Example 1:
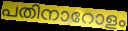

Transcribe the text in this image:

പതിനാറോളം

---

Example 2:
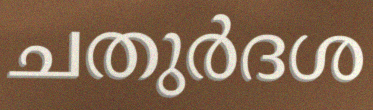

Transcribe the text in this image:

ചതുർദശ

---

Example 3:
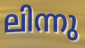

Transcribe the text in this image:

ലിന്നു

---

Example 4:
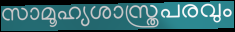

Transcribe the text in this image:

സാമൂഹ്യശാസ്ത്രപരവും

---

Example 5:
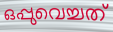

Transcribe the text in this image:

ഒപ്പുവെച്ചത്